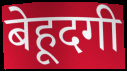
बेहूदगी